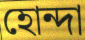
হোন্দা